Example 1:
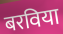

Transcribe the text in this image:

बरविया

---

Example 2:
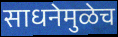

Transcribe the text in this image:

साधनेमुळेच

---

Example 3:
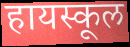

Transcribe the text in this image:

हायस्कूल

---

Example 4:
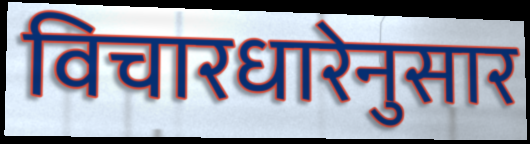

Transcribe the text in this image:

विचारधारेनुसार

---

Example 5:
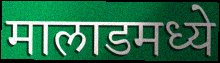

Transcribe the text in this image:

मालाडमध्ये